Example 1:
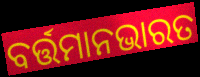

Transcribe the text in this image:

ବର୍ତ୍ତମାନଭାରତ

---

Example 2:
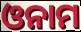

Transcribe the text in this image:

ଓନାମ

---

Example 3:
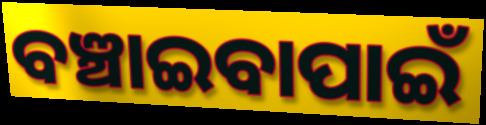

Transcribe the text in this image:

ବଞ୍ଚାଇବାପାଇଁ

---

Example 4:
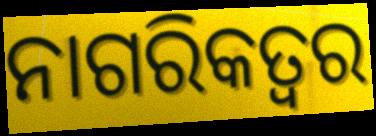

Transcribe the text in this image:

ନାଗରିକତ୍ଵର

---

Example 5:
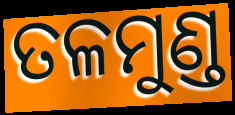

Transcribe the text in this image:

ତଳମୁଣ୍ଡ